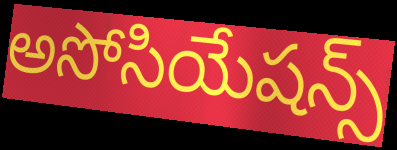
అసోసియేషన్స్